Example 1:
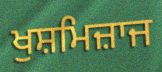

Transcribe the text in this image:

ਖੁਸ਼ਮਿਜ਼ਾਜ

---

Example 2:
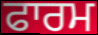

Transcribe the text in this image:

ਫਾਰਮ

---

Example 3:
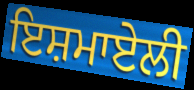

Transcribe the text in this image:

ਇਸ਼ਮਾਏਲੀ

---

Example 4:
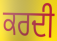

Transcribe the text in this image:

ਕਰਦੀ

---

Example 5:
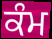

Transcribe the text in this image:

ਕੰਮ